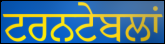
ਟਰਨਟੇਬਲਾਂ